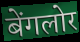
बेंगलोर